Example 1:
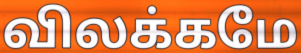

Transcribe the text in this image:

விலக்கமே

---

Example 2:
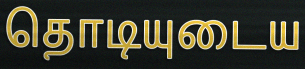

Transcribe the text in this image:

தொடியுடைய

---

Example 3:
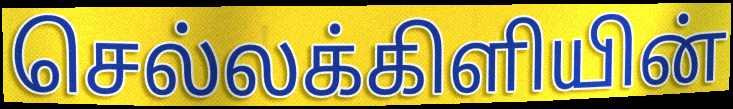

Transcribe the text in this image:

செல்லக்கிளியின்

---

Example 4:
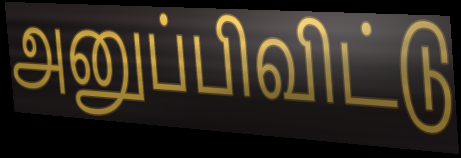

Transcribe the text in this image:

அனுப்பிவிட்டு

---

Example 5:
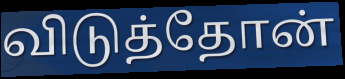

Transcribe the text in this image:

விடுத்தோன்